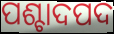
ପଶ୍ଚାଦପଦ